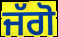
ਜੱਗੋ